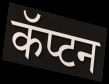
कॅप्टन